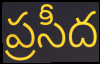
ప్రసీద